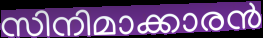
സിനിമാക്കാരൻ